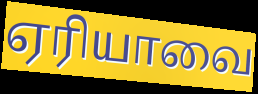
ஏரியாவை